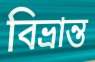
বিভ্রান্ত